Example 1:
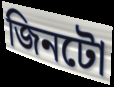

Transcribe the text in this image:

জিনটো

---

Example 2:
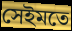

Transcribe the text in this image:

সেইমতে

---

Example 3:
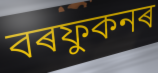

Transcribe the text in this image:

বৰফুকনৰ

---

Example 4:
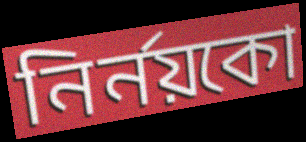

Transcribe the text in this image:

নিৰ্নয়কো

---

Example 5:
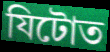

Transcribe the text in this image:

যিটোত